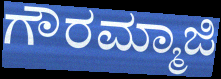
ಗೌರಮ್ಮಾಜಿ